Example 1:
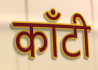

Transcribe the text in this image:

काँटी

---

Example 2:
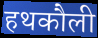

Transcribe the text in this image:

हथकौली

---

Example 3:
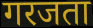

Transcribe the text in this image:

गरजता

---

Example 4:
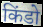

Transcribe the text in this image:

किंडो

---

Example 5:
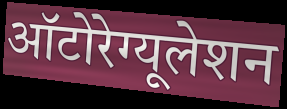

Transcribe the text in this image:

ऑटोरेग्यूलेशन